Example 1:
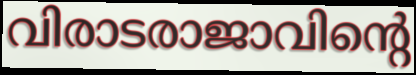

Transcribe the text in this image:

വിരാടരാജാവിന്റെ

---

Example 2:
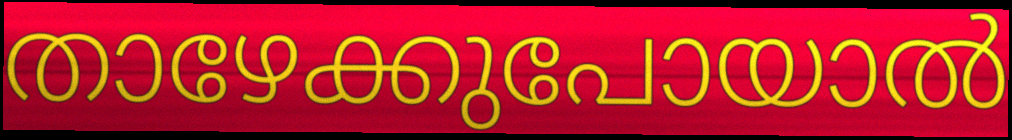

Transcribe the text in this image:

താഴേക്കുപോയാൽ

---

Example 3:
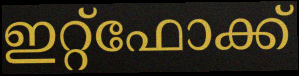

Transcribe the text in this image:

ഇറ്റ്ഫോക്ക്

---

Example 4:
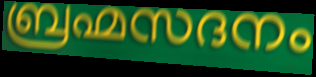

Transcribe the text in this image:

ബ്രഹ്മസദനം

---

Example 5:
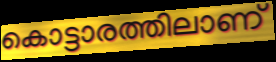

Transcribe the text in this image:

കൊട്ടാരത്തിലാണ്